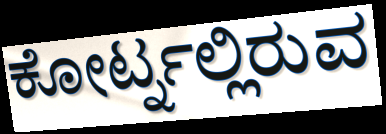
ಕೋರ್ಟ್ನಲ್ಲಿರುವ